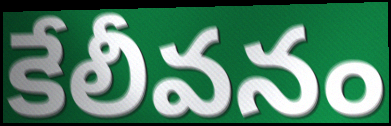
కేలీవనం